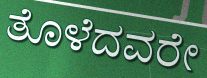
ತೊಳೆದವರೇ